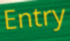
Entry